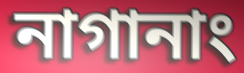
নাগানাং